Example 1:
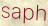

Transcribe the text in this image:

saph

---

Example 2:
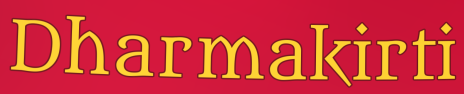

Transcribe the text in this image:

Dharmakirti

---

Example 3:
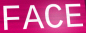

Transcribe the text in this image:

FACE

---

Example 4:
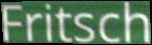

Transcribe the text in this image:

Fritsch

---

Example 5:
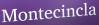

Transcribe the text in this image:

Montecincla